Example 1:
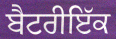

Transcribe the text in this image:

ਬੈਟਰੀਇੱਕ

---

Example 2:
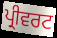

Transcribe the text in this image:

ਪ੍ਰੀਵਰਟ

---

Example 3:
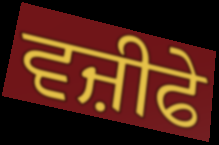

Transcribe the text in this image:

ਵਜ਼ੀਫੇ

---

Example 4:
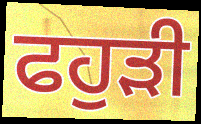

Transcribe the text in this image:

ਫਹੁੜੀ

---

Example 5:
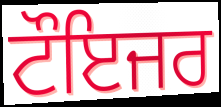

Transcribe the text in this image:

ਟੌਇਜਰ